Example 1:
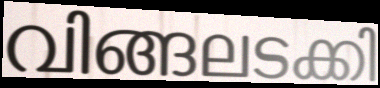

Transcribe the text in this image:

വിങ്ങലടക്കി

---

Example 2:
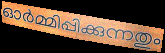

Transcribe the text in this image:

ഓർമ്മിപ്പിക്കുന്നതും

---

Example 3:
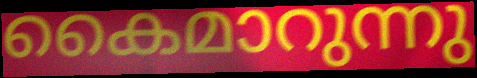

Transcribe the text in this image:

കൈമാറുന്നു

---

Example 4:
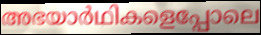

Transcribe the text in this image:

അഭയാർഥികളെപ്പോലെ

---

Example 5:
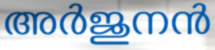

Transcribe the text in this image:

അർജുനൻ